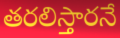
తరలిస్తారనే